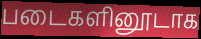
படைகளினூடாக